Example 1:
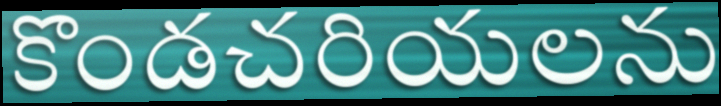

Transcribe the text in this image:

కొండచరియలను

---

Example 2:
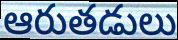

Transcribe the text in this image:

ఆరుతడులు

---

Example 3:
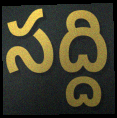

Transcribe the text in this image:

సద్ది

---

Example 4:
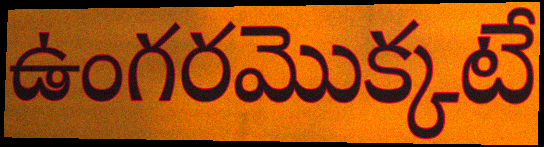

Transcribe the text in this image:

ఉంగరమొక్కటే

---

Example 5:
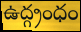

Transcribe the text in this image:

ఉద్గ్రంధం